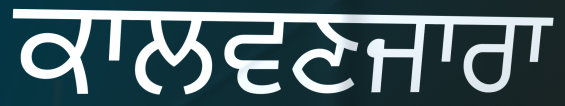
ਕਾਲਵਣਜਾਰਾ